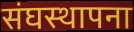
संघस्थापना